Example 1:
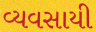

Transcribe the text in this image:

વ્યવસાયી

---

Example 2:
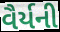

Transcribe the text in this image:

વૈર્યની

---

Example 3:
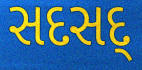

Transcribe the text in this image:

સદસદ્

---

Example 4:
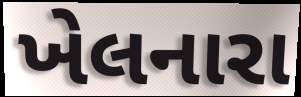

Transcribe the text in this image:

ખેલનારા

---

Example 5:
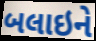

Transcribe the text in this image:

બલાઇને